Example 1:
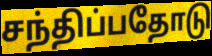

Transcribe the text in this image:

சந்திப்பதோடு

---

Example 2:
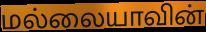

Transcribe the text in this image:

மல்லையாவின்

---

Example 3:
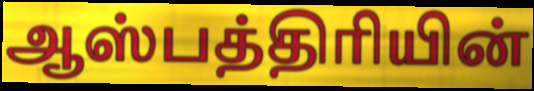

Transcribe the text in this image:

ஆஸ்பத்திரியின்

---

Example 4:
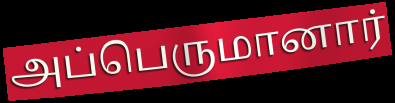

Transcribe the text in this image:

அப்பெருமானார்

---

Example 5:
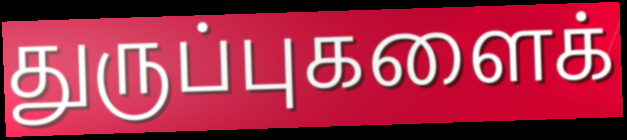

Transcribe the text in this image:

துருப்புகளைக்